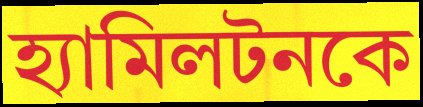
হ্যামিলটনকে